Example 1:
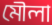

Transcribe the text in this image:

মৌলা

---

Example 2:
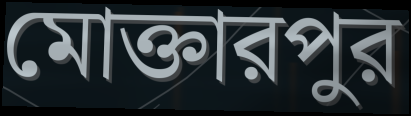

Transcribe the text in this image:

মোক্তারপুর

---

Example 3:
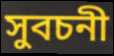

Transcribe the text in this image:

সুবচনী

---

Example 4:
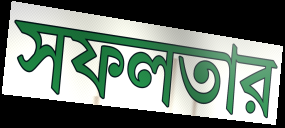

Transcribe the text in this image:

সফলতার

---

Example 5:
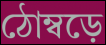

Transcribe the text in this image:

ঠোম্বড়ে